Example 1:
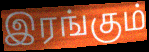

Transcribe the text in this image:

இரங்கும்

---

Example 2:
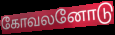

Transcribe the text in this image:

கோவலனோடு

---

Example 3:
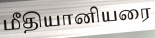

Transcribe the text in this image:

மீதியானியரை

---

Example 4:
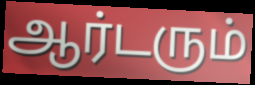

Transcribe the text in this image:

ஆர்டரும்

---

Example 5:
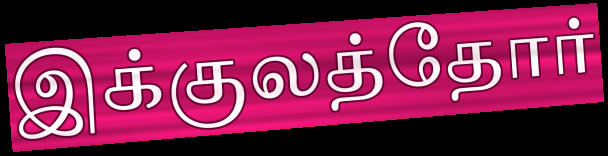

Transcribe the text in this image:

இக்குலத்தோர்